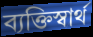
ব্যক্তিস্বার্থ